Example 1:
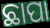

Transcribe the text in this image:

ଛାପା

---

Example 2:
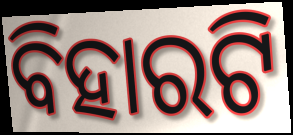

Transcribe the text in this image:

ବିହାରଟି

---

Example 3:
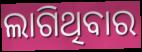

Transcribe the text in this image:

ଲାଗିଥିବାର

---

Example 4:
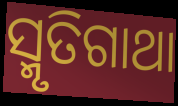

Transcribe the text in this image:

ସ୍ମୃତିଗାଥା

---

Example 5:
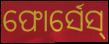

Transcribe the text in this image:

ଫୋର୍ସେସ୍